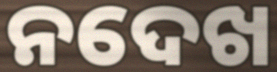
ନଦେଖ